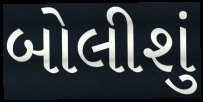
બોલીશું